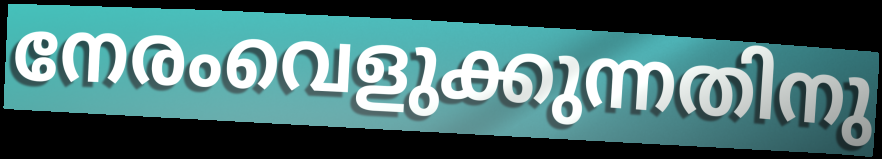
നേരംവെളുക്കുന്നതിനു